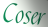
Coser